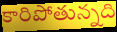
కారిపోతున్నది